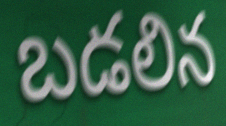
బడలిన